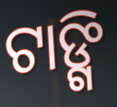
ଟାଙ୍ଗି